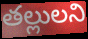
తల్లులని